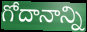
గోదానాన్ని